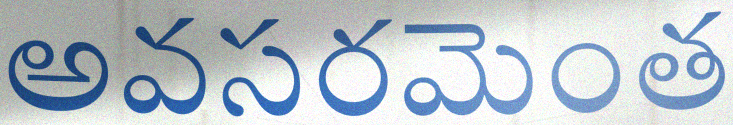
అవసరమెంత